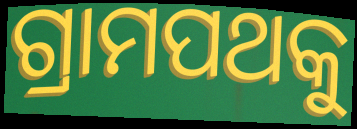
ଗ୍ରାମପଥକୁ